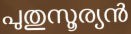
പുതുസൂര്യൻ